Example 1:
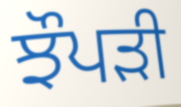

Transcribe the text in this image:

ਝੌਪੜੀ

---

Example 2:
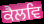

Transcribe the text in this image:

ਕੈਲਵਿ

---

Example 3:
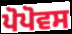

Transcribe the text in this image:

ਪੋਪੋਵਸ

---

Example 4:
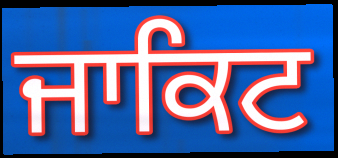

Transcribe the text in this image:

ਜਾਕਿਟ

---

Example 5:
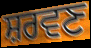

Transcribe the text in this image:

ਸ਼ਰਵਣ